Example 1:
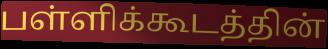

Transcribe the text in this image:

பள்ளிக்கூடத்தின்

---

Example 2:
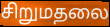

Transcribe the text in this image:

சிறுமதலை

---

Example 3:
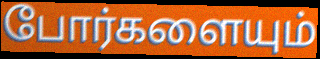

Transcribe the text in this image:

போர்களையும்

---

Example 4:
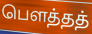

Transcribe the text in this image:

பௌத்தத்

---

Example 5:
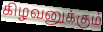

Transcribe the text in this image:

கிழவனுக்கும்